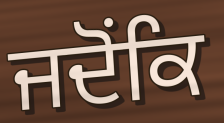
ਜਦੋਂਕਿ